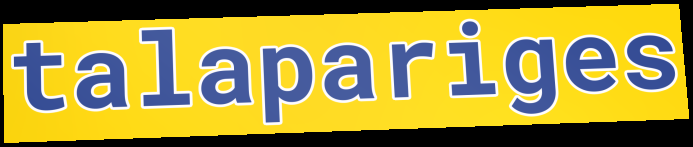
talapariges